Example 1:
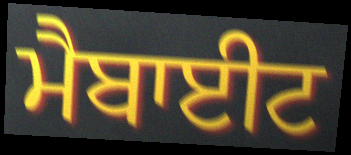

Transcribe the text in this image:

ਮੈਬਾਈਟ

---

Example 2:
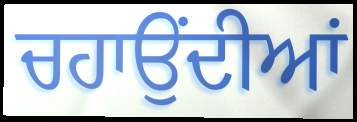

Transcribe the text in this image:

ਚਹਾਉਂਦੀਆਂ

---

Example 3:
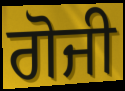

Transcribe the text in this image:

ਗੋਜੀ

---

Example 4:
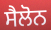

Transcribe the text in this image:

ਸੈਲੋਨ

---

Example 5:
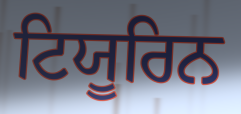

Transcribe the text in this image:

ਟਿਯੂਰਿਨ